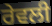
ਰੇਵਲੀ